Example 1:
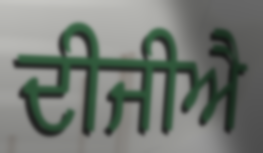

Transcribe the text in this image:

ਦੀਜੀਐ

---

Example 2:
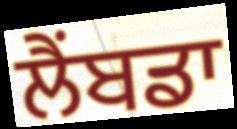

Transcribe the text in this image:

ਲੈਂਬਡਾ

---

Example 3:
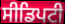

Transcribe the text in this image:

ਸੀਡਿਪਟੀ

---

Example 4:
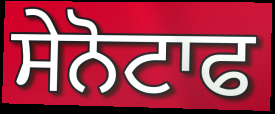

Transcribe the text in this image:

ਸੇਨੋਟਾਫ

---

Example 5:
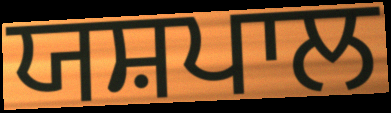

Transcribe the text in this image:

ਯਸ਼ਪਾਲ